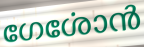
ഗേൎശോൻ